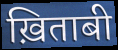
ख़िताबी